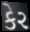
કેર